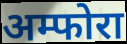
अम्फोरा